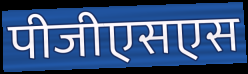
पीजीएसएस